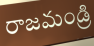
రాజమండ్రి